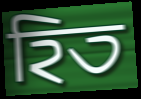
হিত